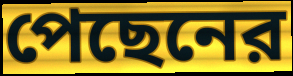
পেছেনের